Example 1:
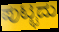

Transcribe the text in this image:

ಪುಟ್ಟದು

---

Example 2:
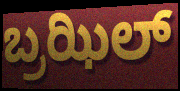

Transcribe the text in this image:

ಬ್ರಝಿಲ್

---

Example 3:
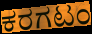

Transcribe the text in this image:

ಕರಗಟಂ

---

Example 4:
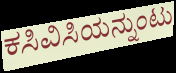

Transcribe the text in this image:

ಕಸಿವಿಸಿಯನ್ನುಂಟು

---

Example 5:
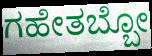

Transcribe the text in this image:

ಗಹೇತಬ್ಬೋ